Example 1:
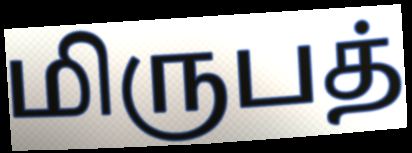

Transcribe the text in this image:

மிருபத்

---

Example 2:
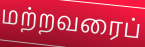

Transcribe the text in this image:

மற்றவரைப்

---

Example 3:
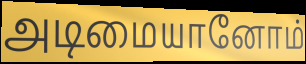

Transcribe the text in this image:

அடிமையானோம்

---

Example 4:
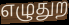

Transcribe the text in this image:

எழுதுற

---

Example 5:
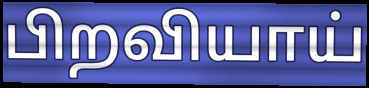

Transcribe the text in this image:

பிறவியாய்